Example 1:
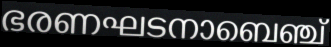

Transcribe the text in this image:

ഭരണഘടനാബെഞ്ച്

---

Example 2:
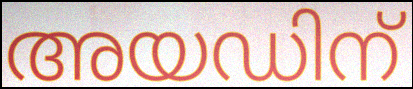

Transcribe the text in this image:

അയഡിന്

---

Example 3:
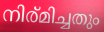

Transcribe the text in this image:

നിര്മിച്ചതും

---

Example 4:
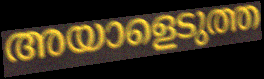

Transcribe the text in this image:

അയാളെടുത്ത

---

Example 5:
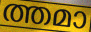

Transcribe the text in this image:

ത്തമാ